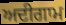
ਅਦੀਗਾਮ